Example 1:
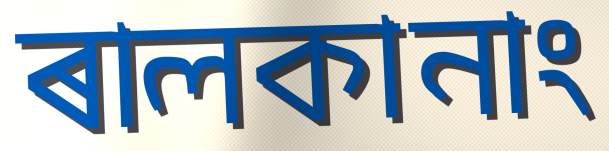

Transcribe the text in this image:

ৰালকানাং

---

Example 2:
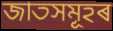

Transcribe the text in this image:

জাতসমূহৰ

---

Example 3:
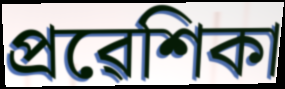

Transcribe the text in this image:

প্ৰৱেশিকা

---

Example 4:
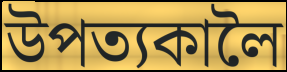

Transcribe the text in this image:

উপত্যকালৈ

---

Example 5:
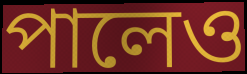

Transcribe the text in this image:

পালেও